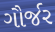
ગૌર્જર